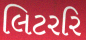
લિટરરિ